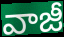
వాజీ